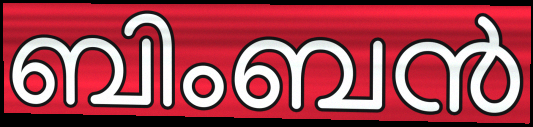
ബിംബൻ